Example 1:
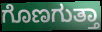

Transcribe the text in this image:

ಗೊಣಗುತ್ತಾ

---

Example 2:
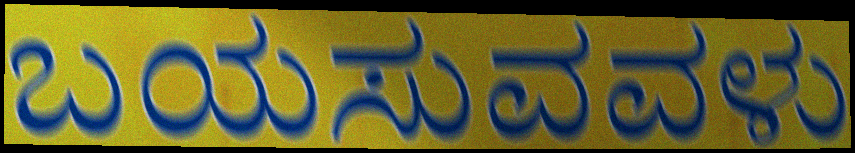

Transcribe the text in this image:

ಬಯಸುವವಳು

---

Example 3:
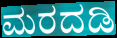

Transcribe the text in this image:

ಮರದಡಿ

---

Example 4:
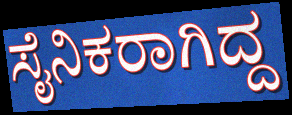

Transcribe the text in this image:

ಸೈನಿಕರಾಗಿದ್ದ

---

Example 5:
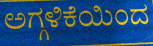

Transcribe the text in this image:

ಅಗ್ಗಳಿಕೆಯಿಂದ